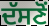
ਦੱਸਣੋਂ